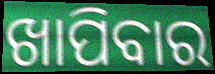
ଖାପିବାର